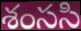
శంససి